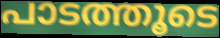
പാടത്തൂടെ